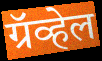
ग्रॅव्हेल